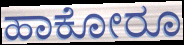
ಹಾಕೋರೂ